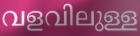
വളവിലുള്ള